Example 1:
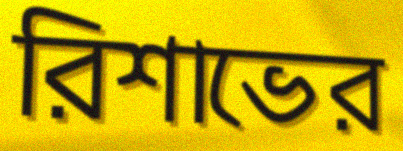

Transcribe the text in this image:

রিশাভের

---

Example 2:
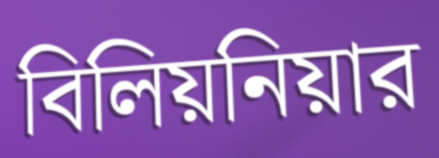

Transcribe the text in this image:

বিলিয়নিয়ার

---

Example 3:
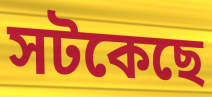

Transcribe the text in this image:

সটকেছে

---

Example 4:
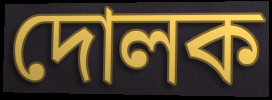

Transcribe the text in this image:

দোলক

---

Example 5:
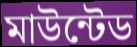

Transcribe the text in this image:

মাউন্টেড